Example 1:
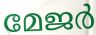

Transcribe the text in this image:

മേജർ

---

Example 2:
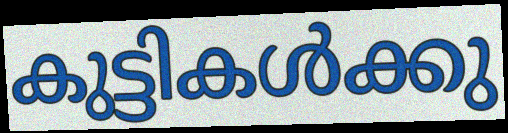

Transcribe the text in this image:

കുട്ടികൾക്കു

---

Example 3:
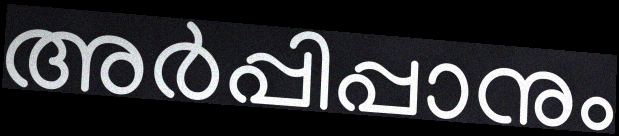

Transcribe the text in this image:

അർപ്പിപ്പാനും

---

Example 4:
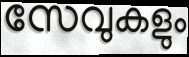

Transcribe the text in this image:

സേവുകളും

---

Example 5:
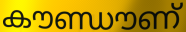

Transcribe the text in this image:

കൗണ്ഡൗണ്